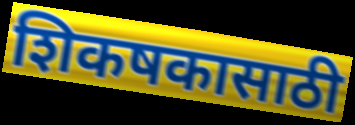
शिकषकासाठी